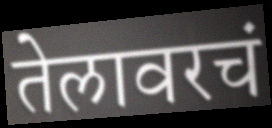
तेलावरचं